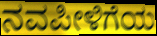
ನವಪೀಳಿಗೆಯ